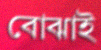
বোঝাই